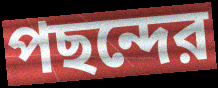
পছন্দের